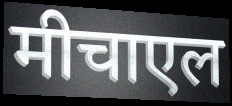
मीचाएल